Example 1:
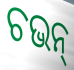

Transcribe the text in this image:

ଚଭନ୍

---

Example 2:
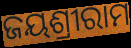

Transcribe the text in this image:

ଜୟଶ୍ରୀରାମ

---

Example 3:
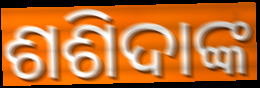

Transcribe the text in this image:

ଶଶିଦାଙ୍କ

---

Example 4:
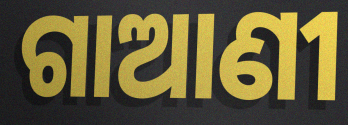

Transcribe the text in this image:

ଗାଆଣୀ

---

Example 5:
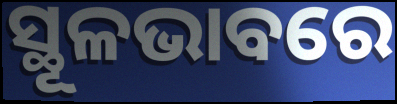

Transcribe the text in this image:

ସ୍ଥୂଳଭାବରେ